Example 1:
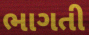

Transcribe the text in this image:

ભાગતી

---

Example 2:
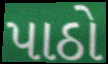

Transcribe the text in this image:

પાઠો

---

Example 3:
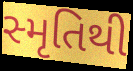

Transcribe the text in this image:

સ્મૃતિથી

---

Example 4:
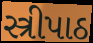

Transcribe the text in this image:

સ્ત્રીપાઠ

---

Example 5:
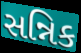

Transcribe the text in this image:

સન્નિક